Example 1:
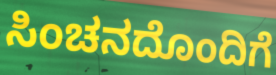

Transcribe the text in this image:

ಸಿಂಚನದೊಂದಿಗೆ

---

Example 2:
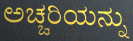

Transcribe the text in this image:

ಅಚ್ಚರಿಯನ್ನು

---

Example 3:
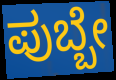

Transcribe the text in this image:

ಪುಬ್ಬೇ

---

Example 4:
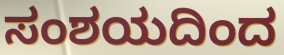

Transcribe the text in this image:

ಸಂಶಯದಿಂದ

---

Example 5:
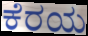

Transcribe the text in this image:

ಕೆರಯ